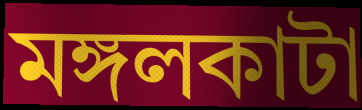
মঙ্গলকাটা